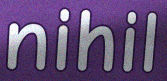
nihil